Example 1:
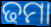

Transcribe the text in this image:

ଢମା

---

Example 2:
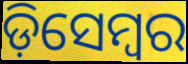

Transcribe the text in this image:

ଡ଼ିସେମ୍ୱର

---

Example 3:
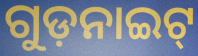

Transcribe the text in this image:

ଗୁଡ଼ନାଇଟ୍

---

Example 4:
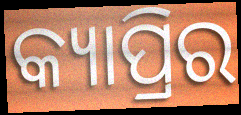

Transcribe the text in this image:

କ୍ୟାପ୍ରିର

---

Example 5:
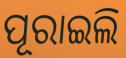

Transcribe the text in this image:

ପୂରାଇଲି